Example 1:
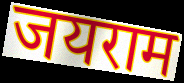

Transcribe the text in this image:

जयराम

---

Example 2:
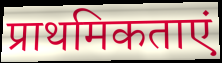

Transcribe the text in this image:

प्राथमिकताएं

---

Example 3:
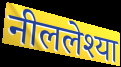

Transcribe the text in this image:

नीललेश्या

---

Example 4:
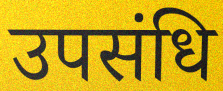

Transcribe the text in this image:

उपसंधि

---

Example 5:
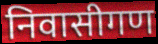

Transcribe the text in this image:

निवासीगण